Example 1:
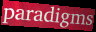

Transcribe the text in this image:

paradigms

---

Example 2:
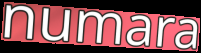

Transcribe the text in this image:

numara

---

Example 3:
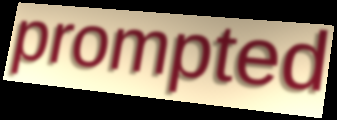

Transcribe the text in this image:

prompted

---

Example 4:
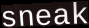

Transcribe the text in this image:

sneak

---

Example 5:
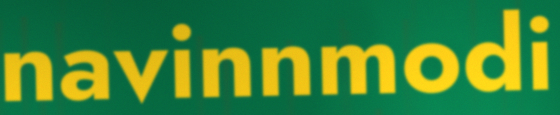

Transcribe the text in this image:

navinnmodi